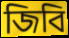
জিবি